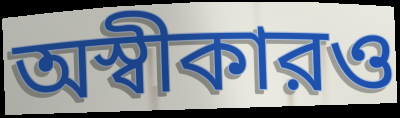
অস্বীকারও